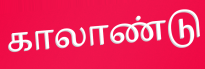
காலாண்டு